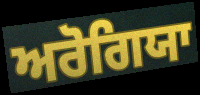
ਅਰੋਗਿਯਾ